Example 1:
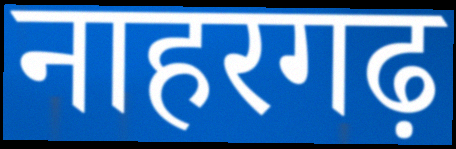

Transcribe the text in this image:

नाहरगढ़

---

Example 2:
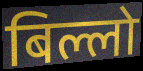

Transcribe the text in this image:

बिल्लो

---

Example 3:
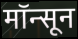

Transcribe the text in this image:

मॉन्सून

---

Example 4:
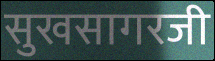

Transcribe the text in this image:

सुखसागरजी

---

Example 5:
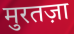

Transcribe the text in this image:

मुरतज़ा